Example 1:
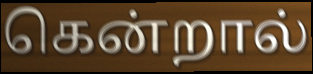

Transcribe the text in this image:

கென்றால்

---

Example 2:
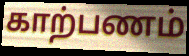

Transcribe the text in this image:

காற்பணம்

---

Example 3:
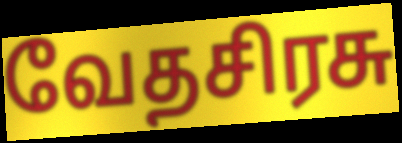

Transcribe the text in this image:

வேதசிரசு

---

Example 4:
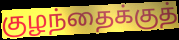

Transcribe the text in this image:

குழந்தைக்குத்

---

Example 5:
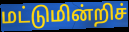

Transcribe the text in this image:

மட்டுமின்றிச்